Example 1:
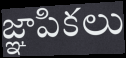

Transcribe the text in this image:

జ్ఞాపికలు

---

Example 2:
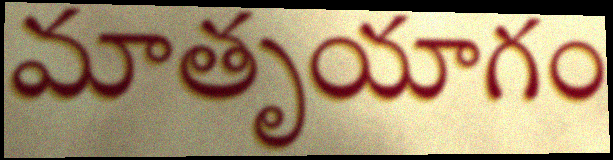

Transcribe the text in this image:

మాతృయాగం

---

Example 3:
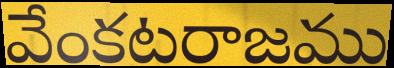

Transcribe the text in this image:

వేంకటరాజము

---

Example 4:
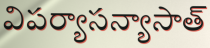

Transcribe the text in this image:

విపర్యాసన్యాసాత్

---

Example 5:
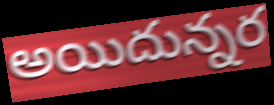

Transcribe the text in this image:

అయిదున్నర